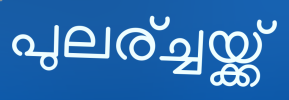
പുലര്ച്ചയ്ക്ക്